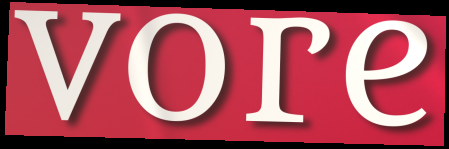
vore